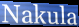
Nakula